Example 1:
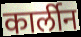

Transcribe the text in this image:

कार्लीन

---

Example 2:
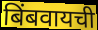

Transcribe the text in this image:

बिंबवायची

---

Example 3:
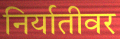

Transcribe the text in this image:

निर्यातीवर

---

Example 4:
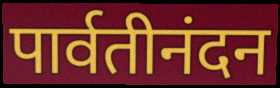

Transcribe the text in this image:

पार्वतीनंदन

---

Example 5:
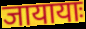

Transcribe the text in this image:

जायायाः